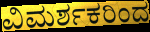
ವಿಮರ್ಶಕರಿಂದ